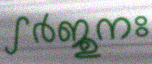
ഽർജുനഃ